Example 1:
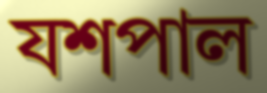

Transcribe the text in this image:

যশপাল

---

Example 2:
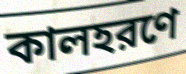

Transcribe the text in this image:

কালহরণে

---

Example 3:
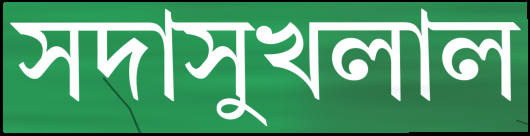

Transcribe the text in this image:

সদাসুখলাল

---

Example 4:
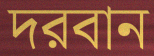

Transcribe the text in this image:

দরবান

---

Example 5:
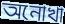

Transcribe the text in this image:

অনোখা